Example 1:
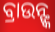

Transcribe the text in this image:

ବ୍ରାଉନ୍ଙ୍କ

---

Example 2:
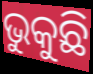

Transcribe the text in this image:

ଭୁକୁଛି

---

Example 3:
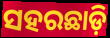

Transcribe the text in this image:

ସହରଛାଡ଼ି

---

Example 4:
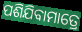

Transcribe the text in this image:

ପଶିଯିବାମାତ୍ରେ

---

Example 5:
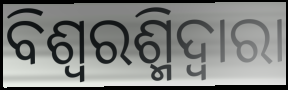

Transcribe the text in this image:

ବିଶ୍ୱରଶ୍ମିଦ୍ୱାରା